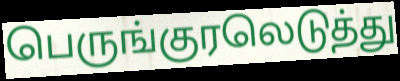
பெருங்குரலெடுத்து